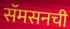
सॅमसनची